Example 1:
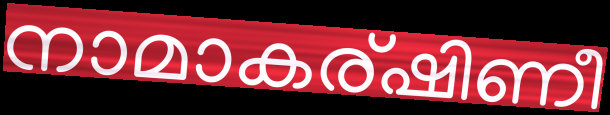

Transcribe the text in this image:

നാമാകര്ഷിണീ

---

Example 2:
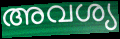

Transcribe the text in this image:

അവശ്യ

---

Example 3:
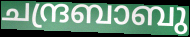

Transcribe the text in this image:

ചന്ദ്രബാബു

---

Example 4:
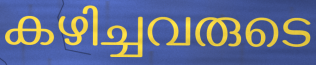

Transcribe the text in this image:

കഴിച്ചവരുടെ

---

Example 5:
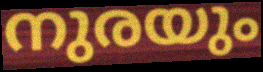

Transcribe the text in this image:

നുരയും